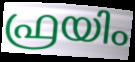
ഫ്രയിം